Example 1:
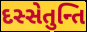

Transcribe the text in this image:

દસ્સેતુન્તિ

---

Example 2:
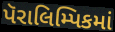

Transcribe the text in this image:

પૅરાલિમ્પિકમાં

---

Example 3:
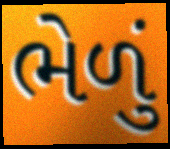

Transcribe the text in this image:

ભેળું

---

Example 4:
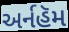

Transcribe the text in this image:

અર્નહૅમ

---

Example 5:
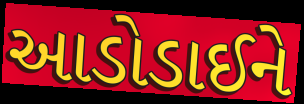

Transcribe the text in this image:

આડોડાઈને